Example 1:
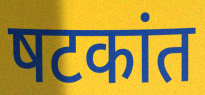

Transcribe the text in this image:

षटकांत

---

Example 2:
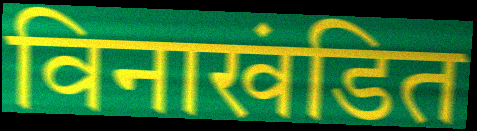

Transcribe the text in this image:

विनाखंडित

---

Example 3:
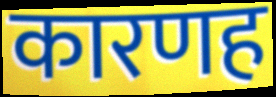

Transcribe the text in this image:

कारणह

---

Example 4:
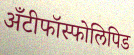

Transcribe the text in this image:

अँटीफॉस्फोलिपिड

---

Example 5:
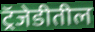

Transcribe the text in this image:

ट्रॅजेडीतील